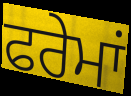
ਫਰੇਮਾਂ